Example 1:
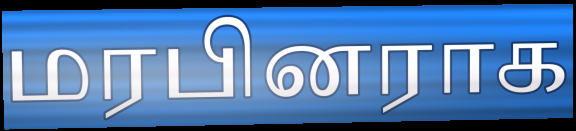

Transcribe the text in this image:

மரபினராக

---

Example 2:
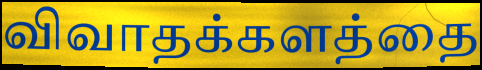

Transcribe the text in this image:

விவாதக்களத்தை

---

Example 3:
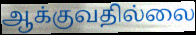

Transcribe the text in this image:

ஆக்குவதில்லை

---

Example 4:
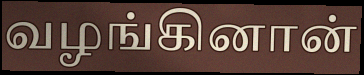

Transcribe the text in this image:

வழங்கினான்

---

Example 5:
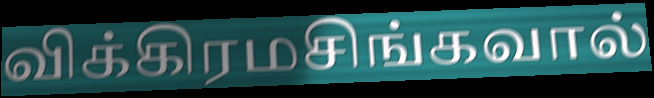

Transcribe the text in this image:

விக்கிரமசிங்கவால்